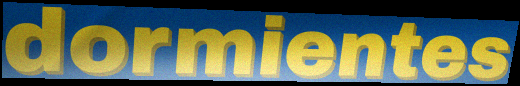
dormientes